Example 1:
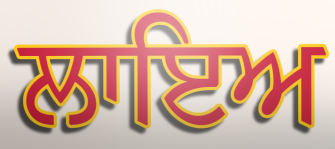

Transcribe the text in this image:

ਲਾਇਅ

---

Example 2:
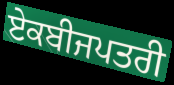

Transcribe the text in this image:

ਏਕਬੀਜਪਤਰੀ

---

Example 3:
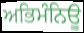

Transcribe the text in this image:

ਅਭਿਮੰਨਿਊ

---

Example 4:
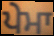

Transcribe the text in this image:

ਪੇਮਾ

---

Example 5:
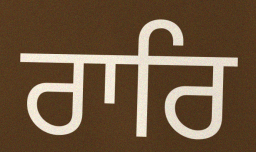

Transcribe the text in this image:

ਰਾਰਿ